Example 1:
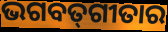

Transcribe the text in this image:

ଭଗବତ୍‍ଗୀତାର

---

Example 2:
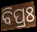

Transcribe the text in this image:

ବିପ୍ରଃ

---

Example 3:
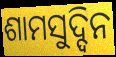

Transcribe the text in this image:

ଶାମସୁଦ୍ଦିନ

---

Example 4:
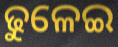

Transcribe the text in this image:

ଢୁଳେଇ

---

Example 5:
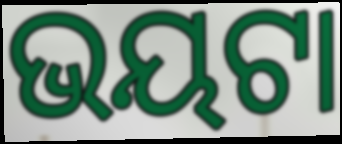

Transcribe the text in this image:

ଭୟଟା